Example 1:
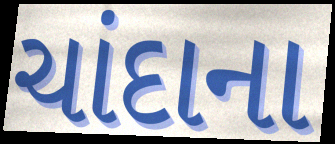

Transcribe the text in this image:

ચાંદાના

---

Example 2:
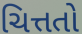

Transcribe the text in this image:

ચિત્તતો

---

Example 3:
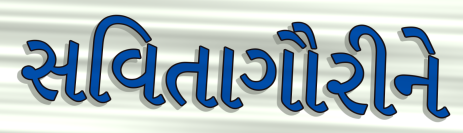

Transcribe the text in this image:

સવિતાગૌરીને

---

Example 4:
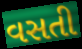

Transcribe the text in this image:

વસતી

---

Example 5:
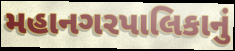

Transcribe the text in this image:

મહાનગરપાલિકાનું